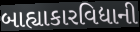
બાહ્યાકારવિદ્યાની